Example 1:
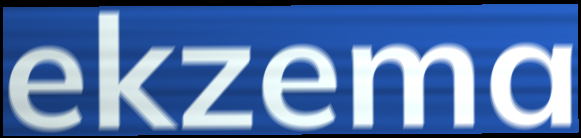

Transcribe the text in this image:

ekzema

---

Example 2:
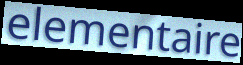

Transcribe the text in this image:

elementaire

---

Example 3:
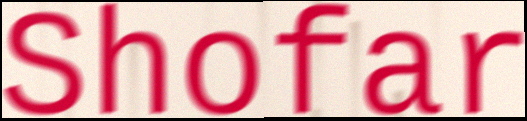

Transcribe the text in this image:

Shofar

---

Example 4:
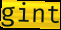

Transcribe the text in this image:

gint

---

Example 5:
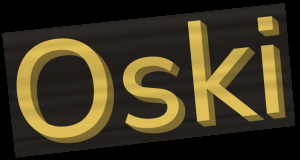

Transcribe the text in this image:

Oski